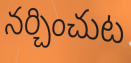
నర్చించుట